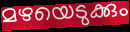
മഴയെടുക്കും